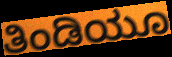
ತಿಂಡಿಯೂ